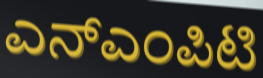
ಎನ್ಎಂಪಿಟಿ